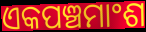
ଏକପଞ୍ଚମାଂଶ